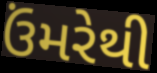
ઉંમરેથી